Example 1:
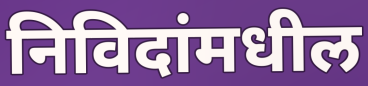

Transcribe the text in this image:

निविदांमधील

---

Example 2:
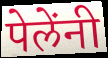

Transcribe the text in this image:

पेलेंनी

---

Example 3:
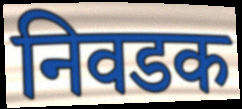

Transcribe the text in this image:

निवडक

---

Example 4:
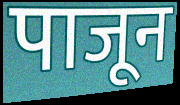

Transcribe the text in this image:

पाजून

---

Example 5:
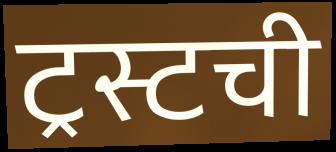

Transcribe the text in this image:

ट्रस्टची